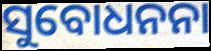
ସୁବୋଧନନା